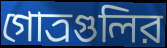
গোত্রগুলির